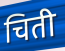
चिती